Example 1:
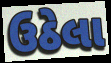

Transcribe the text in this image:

ઉઠેલા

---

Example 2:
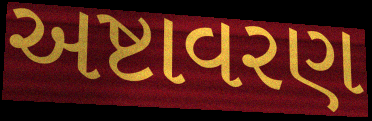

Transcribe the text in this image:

અષ્ટાવરણ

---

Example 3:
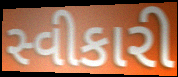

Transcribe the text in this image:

સ્વીકારી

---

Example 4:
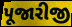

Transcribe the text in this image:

પૂજારીજી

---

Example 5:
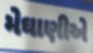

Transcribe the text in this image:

મેઘાણીએ